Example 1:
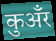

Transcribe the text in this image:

कुअँर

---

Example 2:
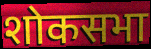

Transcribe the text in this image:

शोकसभा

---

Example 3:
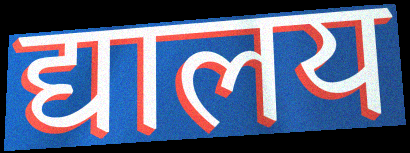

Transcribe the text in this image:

द्यालय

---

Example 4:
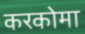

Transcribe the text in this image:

करकोमा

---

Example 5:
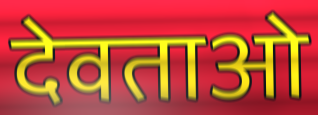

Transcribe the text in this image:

देवताओ